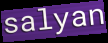
salyan